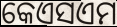
କେଏସଏମ